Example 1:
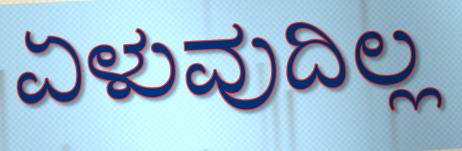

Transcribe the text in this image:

ಏಳುವುದಿಲ್ಲ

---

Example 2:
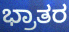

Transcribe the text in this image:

ಭ್ರಾತರ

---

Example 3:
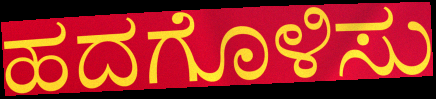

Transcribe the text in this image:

ಹದಗೊಳಿಸು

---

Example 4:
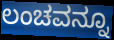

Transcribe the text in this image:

ಲಂಚವನ್ನೂ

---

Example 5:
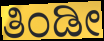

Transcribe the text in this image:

ತಿಂಡೀ